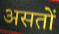
असतों